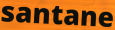
santane